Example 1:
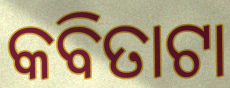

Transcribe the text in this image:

କବିତାଟା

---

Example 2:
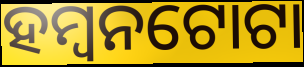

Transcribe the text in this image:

ହମ୍ବନଟୋଟା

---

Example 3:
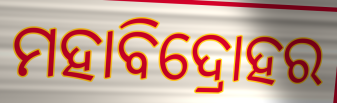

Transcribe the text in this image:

ମହାବିଦ୍ରୋହର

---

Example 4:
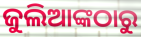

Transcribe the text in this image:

ଜୁଲିଆଙ୍କଠାରୁ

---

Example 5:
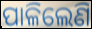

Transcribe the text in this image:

ପାଳିଲେଣି